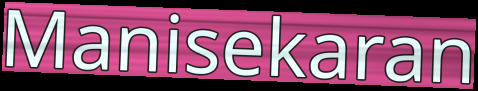
Manisekaran